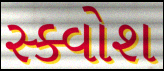
સ્ક્વોશ